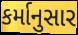
કર્માનુસાર